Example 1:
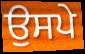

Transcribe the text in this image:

ਉਸਪੇ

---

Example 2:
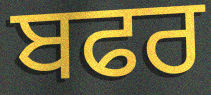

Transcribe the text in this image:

ਬਫਰ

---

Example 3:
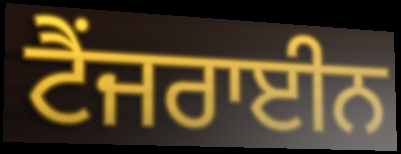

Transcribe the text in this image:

ਟੈਂਜਰਾਈਨ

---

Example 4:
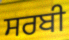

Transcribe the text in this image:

ਸਰਬੀ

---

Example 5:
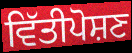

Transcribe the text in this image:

ਵਿੱਤੀਪੋਸ਼ਣ